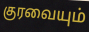
குரவையும்